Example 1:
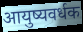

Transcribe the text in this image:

आयुष्यवर्धक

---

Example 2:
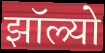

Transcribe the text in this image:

झॉल्यो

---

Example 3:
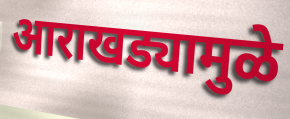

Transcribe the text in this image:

आराखड्यामुळे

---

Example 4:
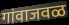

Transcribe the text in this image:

गांवाजवळ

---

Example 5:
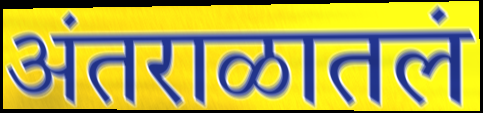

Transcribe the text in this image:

अंतराळातलं